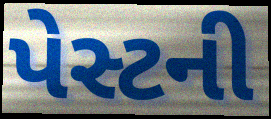
પેસ્ટની